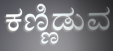
ಕಣ್ಣಿಡುವ